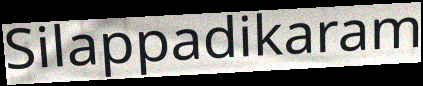
Silappadikaram